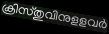
ക്രിസ്തുവിനുളളവർ